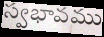
స్వభావము